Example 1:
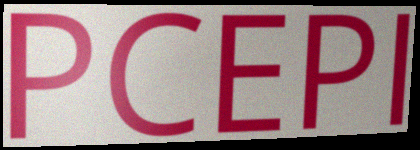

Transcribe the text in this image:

PCEPI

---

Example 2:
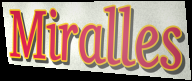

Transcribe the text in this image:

Miralles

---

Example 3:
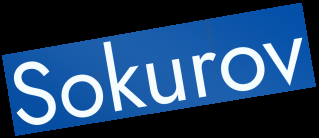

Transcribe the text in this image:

Sokurov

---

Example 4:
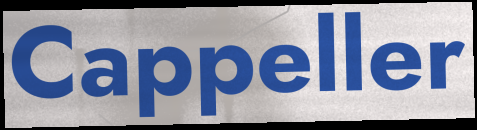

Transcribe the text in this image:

Cappeller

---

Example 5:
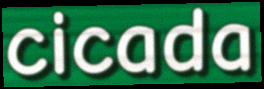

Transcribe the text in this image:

cicada